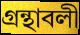
গ্রন্থাবলী